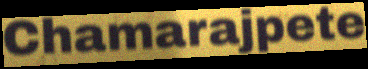
Chamarajpete